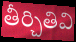
తీర్చితివి